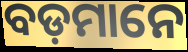
ବଡ଼ମାନେ